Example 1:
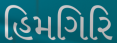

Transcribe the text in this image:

હિમગિરિ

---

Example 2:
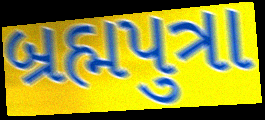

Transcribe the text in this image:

બ્રહ્મપુત્રા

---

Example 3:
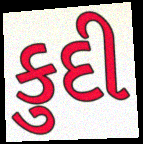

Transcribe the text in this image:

કુદી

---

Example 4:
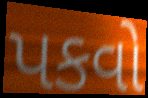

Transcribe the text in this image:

પકવો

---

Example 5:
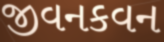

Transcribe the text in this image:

જીવનકવન